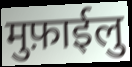
मुफ़ाईलु